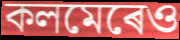
কলমেৰেও